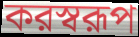
করস্বরূপ